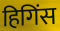
हिगिंस